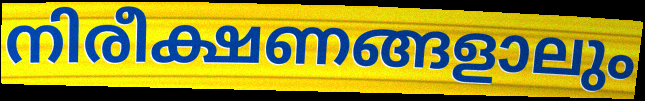
നിരീക്ഷണങ്ങളാലും